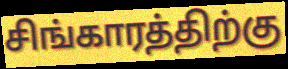
சிங்காரத்திற்கு